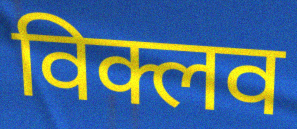
विक्लव